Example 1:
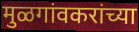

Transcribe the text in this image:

मुळगांवकरांच्या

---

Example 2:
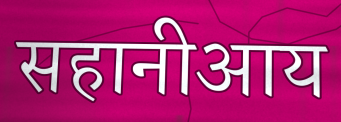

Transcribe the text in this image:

सहानीआय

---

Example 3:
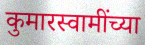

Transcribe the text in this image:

कुमारस्वामींच्या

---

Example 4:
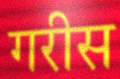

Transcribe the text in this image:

गरीस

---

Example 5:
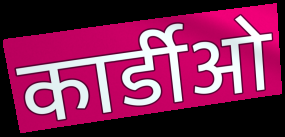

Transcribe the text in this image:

कार्डीओ